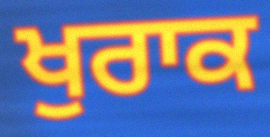
ਖੁਰਾਕ